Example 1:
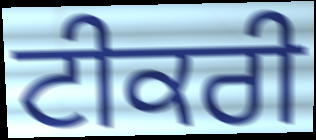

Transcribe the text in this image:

ਟੀਕਰੀ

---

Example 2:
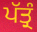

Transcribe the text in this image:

ਪੱਤ੍ਰੰ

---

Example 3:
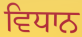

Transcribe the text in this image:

ਵਿਧਾਨ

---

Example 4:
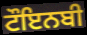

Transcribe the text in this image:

ਟੌਇਨਬੀ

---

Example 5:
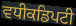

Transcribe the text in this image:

ਵਧੀਕਡਿਪਟੀ